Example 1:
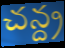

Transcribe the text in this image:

చన్ద్ర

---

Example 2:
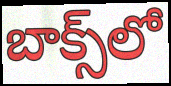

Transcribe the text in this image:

బాక్స్‌లో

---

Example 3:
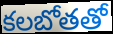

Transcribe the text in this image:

కలబోతతో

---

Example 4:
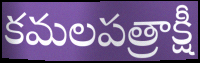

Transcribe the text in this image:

కమలపత్రాక్షీ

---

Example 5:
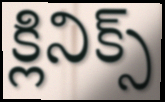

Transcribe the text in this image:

క్లినిక్స్